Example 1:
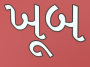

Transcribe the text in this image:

ખૂબ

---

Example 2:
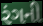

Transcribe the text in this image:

રંગની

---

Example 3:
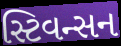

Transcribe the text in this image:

સ્ટિવન્સન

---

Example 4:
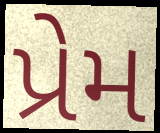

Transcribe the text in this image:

પ્રેમ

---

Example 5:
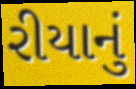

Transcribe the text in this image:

રીયાનું